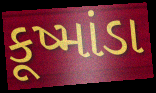
કૂષ્માંડા